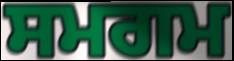
ਸਮਗਮ